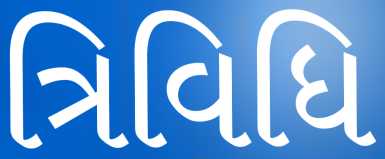
ત્રિવિધિ